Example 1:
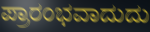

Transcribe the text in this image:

ಪ್ರಾರಂಭವಾದುದು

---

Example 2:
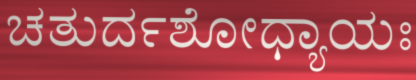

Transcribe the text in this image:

ಚತುರ್ದಶೋಧ್ಯಾಯಃ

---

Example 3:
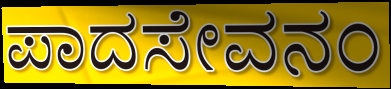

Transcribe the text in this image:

ಪಾದಸೇವನಂ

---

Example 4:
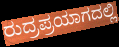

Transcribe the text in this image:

ರುದ್ರಪ್ರಯಾಗದಲ್ಲಿ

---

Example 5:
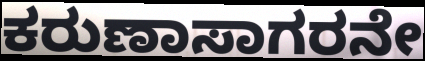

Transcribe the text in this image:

ಕರುಣಾಸಾಗರನೇ